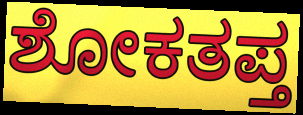
ಶೋಕತಪ್ತ